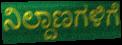
ನಿಲ್ದಾಣಗಳಿಗೆ